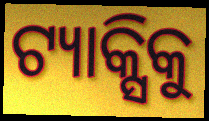
ଟ୍ୟାକ୍ସିକୁ